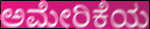
ಅಮೇರಿಕೆಯ